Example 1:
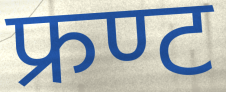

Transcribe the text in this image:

फ्रण्ट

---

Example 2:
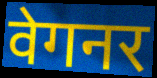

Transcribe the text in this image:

वेगनर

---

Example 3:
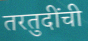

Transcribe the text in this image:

तरतुदींची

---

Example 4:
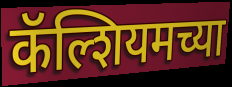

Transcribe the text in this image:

कॅल्शियमच्या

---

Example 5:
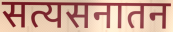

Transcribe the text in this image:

सत्यसनातन